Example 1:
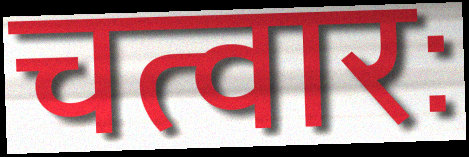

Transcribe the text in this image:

चत्वारः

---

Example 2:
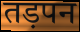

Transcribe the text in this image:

तड़पन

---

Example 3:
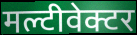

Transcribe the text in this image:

मल्टीवेक्टर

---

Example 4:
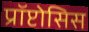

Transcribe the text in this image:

प्रॉप्टोसिस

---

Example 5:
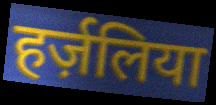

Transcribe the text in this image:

हर्ज़लिया